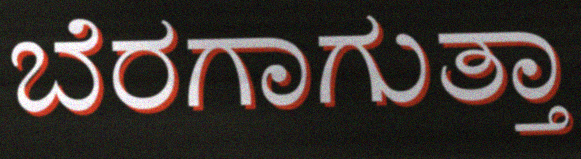
ಬೆರಗಾಗುತ್ತಾ